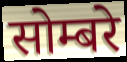
सोम्बरे